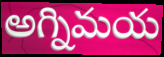
అగ్నిమయ